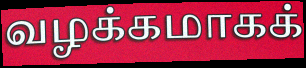
வழக்கமாகக்